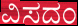
ವಿಸದಂ